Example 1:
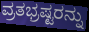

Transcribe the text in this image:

ವ್ರತಭ್ರಷ್ಟರನ್ನು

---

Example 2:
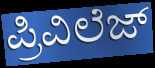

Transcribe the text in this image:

ಪ್ರಿವಿಲೆಜ್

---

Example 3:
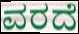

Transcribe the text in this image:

ವರದೆ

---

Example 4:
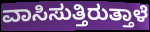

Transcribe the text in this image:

ವಾಸಿಸುತ್ತಿರುತ್ತಾಳೆ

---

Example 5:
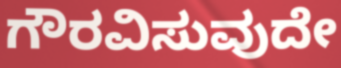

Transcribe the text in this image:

ಗೌರವಿಸುವುದೇ